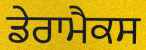
ਡੇਰਾਮੈਕਸ